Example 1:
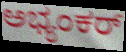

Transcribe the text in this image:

ಅಭ್ಯಂಕರ್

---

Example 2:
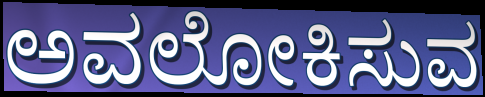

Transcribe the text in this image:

ಅವಲೋಕಿಸುವ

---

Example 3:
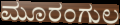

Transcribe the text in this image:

ಮೂರಂಗುಲ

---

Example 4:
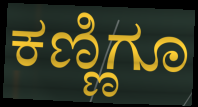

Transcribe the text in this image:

ಕಣ್ಣಿಗೂ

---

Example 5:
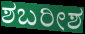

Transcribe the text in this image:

ಶಬರೀಶ